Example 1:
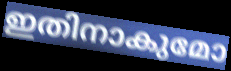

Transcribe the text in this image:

ഇതിനാകുമോ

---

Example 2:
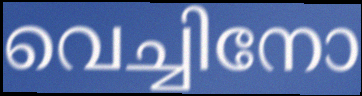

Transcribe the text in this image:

വെച്ചിനോ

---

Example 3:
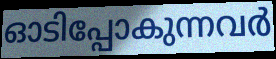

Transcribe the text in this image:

ഓടിപ്പോകുന്നവർ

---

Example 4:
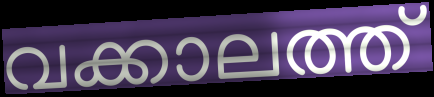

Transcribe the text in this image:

വക്കാലത്ത്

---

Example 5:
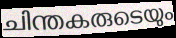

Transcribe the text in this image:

ചിന്തകരുടെയും